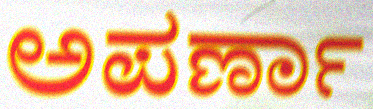
ಅಪರ್ಣಾ